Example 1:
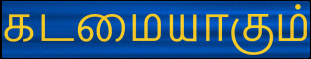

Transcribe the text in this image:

கடமையாகும்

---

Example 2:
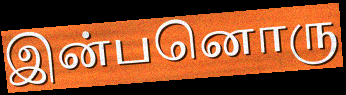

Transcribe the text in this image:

இன்பனொரு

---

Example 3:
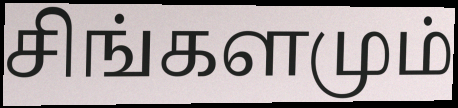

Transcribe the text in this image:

சிங்களமும்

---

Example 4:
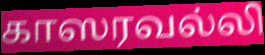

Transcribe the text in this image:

காஸரவல்லி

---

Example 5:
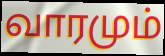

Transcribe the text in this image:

வாரமும்